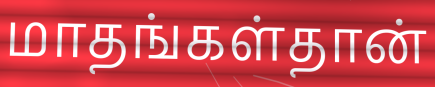
மாதங்கள்தான்